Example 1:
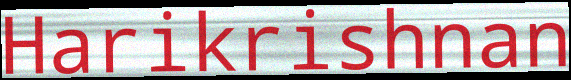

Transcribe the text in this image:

Harikrishnan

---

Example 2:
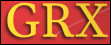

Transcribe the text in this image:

GRX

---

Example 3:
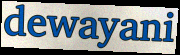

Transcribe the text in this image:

dewayani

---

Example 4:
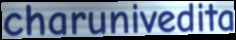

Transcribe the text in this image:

charunivedita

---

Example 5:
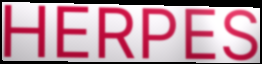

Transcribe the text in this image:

HERPES